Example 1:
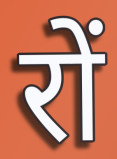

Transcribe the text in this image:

रों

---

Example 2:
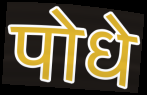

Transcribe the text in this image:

पोधे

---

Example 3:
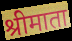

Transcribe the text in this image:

श्रीमाता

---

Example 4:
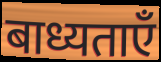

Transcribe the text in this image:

बाध्यताएँ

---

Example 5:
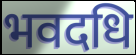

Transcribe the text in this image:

भवदधि